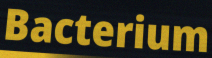
Bacterium